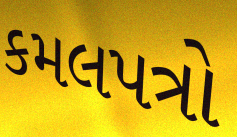
કમલપત્રો